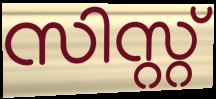
സിസ്റ്റ്